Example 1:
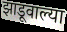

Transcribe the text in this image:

झाडूवाल्या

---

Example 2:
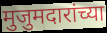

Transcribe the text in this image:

मुजुमदारांच्या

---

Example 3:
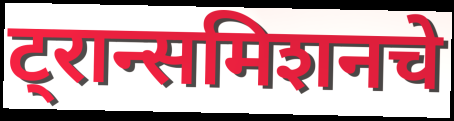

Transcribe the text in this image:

ट्रान्समिशनचे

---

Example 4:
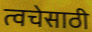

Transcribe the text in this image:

त्वचेसाठी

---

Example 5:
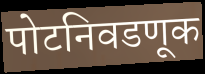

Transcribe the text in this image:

पोटनिवडणूक